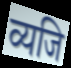
व्यजि